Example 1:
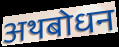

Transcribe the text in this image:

अथबोधन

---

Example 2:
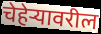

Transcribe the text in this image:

चेहेऱ्यावरील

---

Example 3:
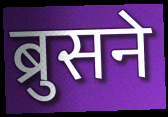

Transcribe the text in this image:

ब्रुसने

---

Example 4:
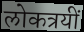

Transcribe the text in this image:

लोकत्रयीं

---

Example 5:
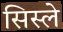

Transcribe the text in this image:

सिस्ले